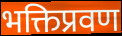
भक्तिप्रवण